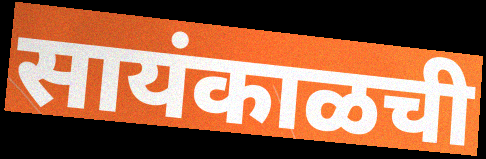
सायंकाळची